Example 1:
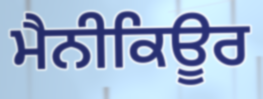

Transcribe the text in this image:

ਮੈਨੀਕਿਊਰ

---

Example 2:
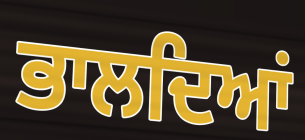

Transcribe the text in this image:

ਭਾਲਦਿਆਂ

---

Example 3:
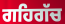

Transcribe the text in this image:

ਗਹਿਗੱਚ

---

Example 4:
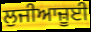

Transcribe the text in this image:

ਲੁਜੀਆਜ਼ੂਈ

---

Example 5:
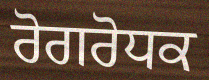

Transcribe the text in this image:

ਰੋਗਰੋਧਕ